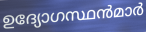
ഉദ്യോഗസ്ഥൻമാർ